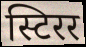
स्टिरर